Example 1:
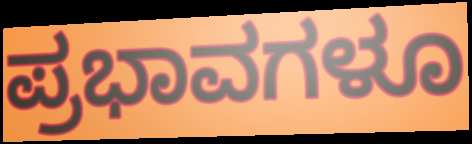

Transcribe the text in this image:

ಪ್ರಭಾವಗಳೂ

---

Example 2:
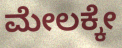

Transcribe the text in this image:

ಮೇಲಕ್ಕೇ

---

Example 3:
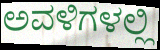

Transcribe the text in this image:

ಅವಳಿಗಳಲ್ಲಿ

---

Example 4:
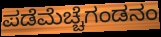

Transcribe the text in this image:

ಪಡೆಮೆಚ್ಚೆಗಂಡನಂ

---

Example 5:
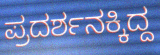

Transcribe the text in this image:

ಪ್ರದರ್ಶನಕ್ಕಿದ್ದ